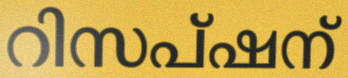
റിസപ്ഷന്